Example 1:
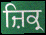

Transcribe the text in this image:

ਜ਼ਿਕ੍ਰ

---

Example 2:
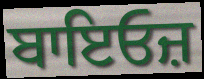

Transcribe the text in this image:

ਬਾਇਓਜ਼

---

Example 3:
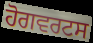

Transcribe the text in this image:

ਹੋਗਵਰਟਸ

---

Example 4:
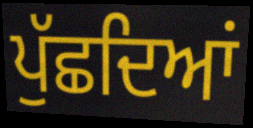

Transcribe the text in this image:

ਪੁੱਛਦਿਆਂ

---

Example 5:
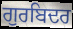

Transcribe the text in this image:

ਗੁਰਬਿਦਰ